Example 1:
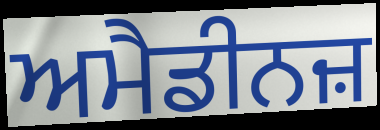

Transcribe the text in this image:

ਅਮੈਡੀਨਜ਼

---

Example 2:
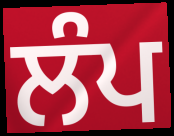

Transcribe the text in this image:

ਲੰਪ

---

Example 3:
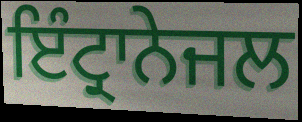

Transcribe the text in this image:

ਇੰਟ੍ਰਾਨੇਜਲ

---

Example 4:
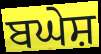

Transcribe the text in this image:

ਬਘੇਸ਼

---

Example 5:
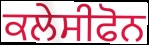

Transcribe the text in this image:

ਕਲੇਸੀਫੋਨ